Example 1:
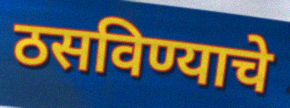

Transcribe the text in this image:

ठसविण्याचे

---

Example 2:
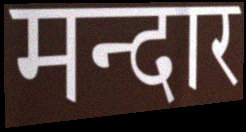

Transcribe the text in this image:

मन्दार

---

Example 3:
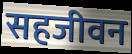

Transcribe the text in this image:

सहजीवन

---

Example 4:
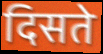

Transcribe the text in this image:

दिसते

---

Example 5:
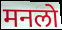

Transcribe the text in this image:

मनलो